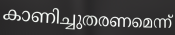
കാണിച്ചുതരണമെന്ന്